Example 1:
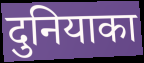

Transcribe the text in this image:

दुनियाका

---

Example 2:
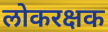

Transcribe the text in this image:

लोकरक्षक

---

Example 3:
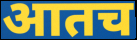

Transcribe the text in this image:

आतच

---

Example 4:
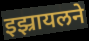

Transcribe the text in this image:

इझ्रायलने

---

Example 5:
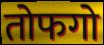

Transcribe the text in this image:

तोफगो